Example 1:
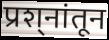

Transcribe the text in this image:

प्रश्नांतून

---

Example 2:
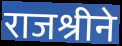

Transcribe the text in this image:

राजश्रीने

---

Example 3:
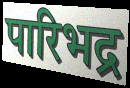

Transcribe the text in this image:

पारिभद्र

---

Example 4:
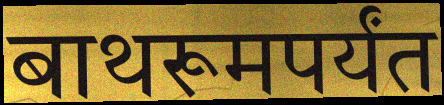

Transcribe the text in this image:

बाथरूमपर्यंत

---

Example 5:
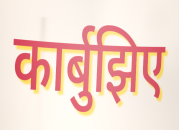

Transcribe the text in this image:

कार्बुझिए